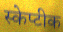
स्केप्टीक